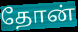
தோன்